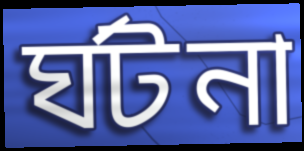
র্ঘটনা